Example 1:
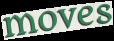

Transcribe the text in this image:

moves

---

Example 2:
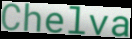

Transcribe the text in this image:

Chelva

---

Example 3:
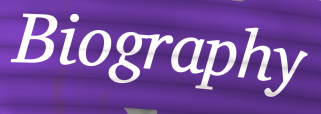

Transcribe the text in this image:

Biography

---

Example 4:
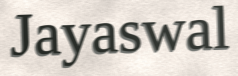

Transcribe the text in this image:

Jayaswal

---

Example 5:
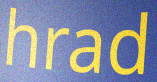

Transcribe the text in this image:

hrad